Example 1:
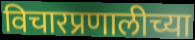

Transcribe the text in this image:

विचारप्रणालीच्या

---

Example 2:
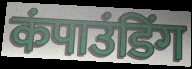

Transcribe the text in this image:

कंपाउंडिंग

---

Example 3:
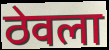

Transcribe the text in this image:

ठेवला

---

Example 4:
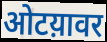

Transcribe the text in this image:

ओटय़ावर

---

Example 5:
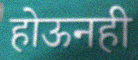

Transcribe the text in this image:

होऊनही